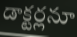
డాక్టర్లనూ